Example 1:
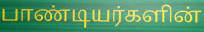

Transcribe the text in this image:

பாண்டியர்களின்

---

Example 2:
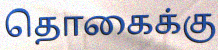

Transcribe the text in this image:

தொகைக்கு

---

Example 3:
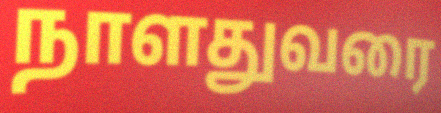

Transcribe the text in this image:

நாளதுவரை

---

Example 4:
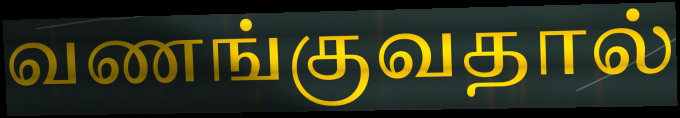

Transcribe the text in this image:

வணங்குவதால்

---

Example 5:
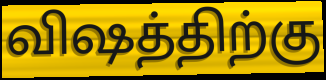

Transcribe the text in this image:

விஷத்திற்கு